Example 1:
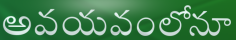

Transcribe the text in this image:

అవయవంలోనూ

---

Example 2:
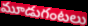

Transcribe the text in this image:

మూడుగంటలు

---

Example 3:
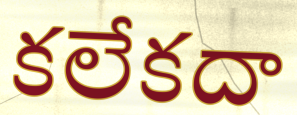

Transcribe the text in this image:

కలేకదా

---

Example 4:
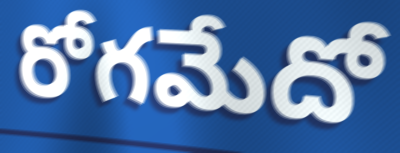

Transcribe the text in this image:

రోగమేదో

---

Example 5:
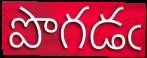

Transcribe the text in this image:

పొగడఁ